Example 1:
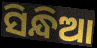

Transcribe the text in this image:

ସିନ୍ଧିଆ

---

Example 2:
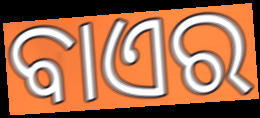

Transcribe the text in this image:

ବାଏର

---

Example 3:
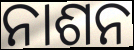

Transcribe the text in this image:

ନାଶନ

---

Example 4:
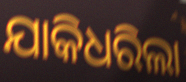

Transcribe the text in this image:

ଯାକିଧରିଲା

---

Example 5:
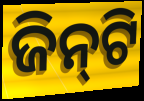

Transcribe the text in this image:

ଜିନ୍‌ଟି